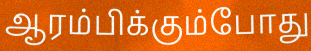
ஆரம்பிக்கும்போது